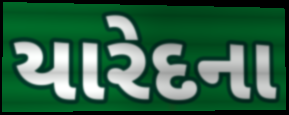
યારેદના